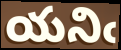
యనిఁ